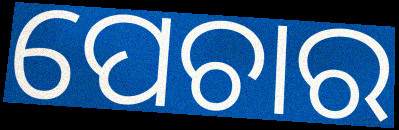
ପେଚାର